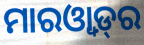
ମାରଓ୍ୱାଡ଼୍‌ର